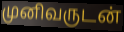
முனிவருடன்